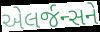
એલર્જન્સને